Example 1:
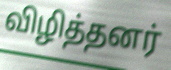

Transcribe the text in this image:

விழித்தனர்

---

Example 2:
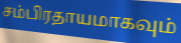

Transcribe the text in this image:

சம்பிரதாயமாகவும்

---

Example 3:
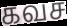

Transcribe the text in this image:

கவச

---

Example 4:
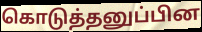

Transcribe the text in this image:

கொடுத்தனுப்பின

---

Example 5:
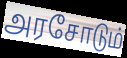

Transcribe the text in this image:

அரசோடும்